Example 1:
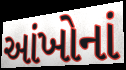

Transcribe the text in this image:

આંખોનાં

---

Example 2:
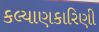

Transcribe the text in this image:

કલ્યાણકારિણી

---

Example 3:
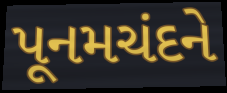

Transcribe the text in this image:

પૂનમચંદને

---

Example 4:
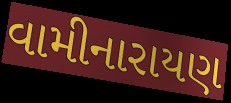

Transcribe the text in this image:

વામીનારાયણ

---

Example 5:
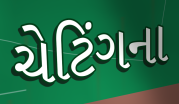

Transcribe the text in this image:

ચેટિંગના